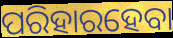
ପରିହାରହେବା